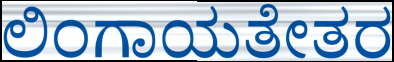
ಲಿಂಗಾಯತೇತರ